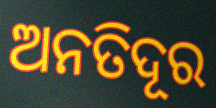
ଅନତିଦୂର